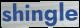
shingle